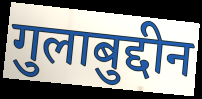
गुलाबुद्दीन